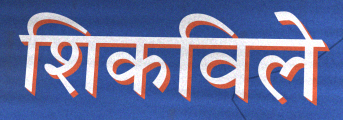
शिकविले